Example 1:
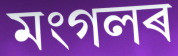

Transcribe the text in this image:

মংগলৰ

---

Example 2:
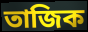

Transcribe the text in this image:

তাজিক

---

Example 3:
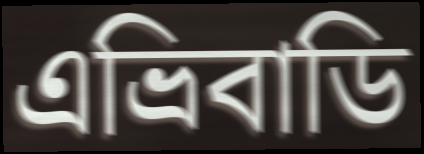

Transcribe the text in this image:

এভ্ৰিবাডি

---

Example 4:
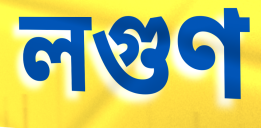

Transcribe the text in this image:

লগুণ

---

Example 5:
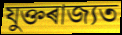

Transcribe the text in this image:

যুক্তৰাজ্যত